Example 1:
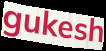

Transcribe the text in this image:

gukesh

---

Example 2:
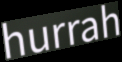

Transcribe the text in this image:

hurrah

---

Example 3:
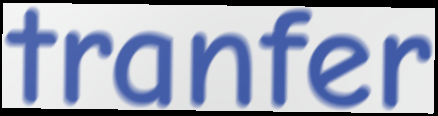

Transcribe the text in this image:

tranfer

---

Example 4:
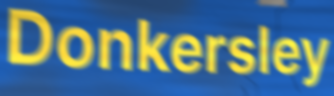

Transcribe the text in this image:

Donkersley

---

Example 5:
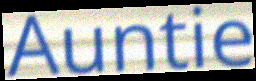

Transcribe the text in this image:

Auntie